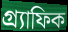
গ্র্যাফিক